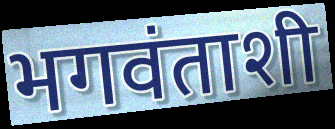
भगवंताशी